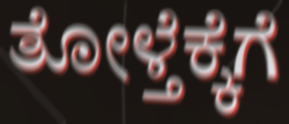
ತೋಳ್ತೆಕ್ಕೆಗೆ